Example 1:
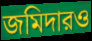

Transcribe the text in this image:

জমিদারও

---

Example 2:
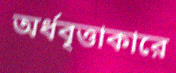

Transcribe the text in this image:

অর্ধবৃত্তাকারে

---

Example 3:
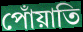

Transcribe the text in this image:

পোঁয়াতি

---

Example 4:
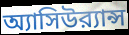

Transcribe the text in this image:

অ্যাসিউর‍্যান্স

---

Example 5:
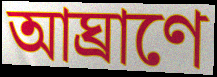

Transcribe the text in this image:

আঘ্রাণে